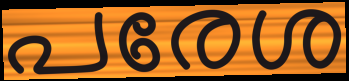
പരേശ